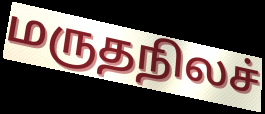
மருதநிலச்